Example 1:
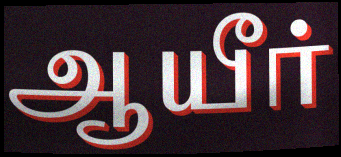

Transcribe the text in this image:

ஆயீர்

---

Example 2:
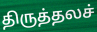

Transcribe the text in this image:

திருத்தலச்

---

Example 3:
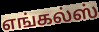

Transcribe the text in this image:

எங்கல்ஸ்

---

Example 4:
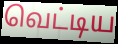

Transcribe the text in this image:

வெட்டிய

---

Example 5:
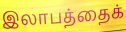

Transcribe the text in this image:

இலாபத்தைக்